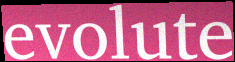
evolute